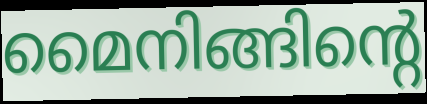
മൈനിങ്ങിന്റെ